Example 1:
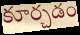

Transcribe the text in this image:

కూర్చడం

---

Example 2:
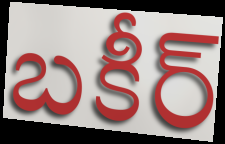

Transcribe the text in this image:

బకీర్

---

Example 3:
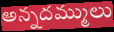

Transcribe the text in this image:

అన్నదమ్ములు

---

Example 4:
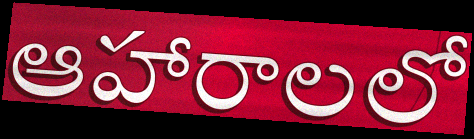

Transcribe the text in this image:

ఆహారాలలో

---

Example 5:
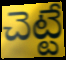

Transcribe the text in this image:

చెట్టే